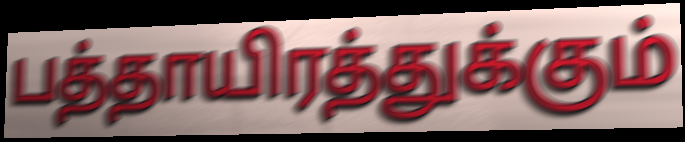
பத்தாயிரத்துக்கும்